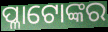
ପ୍ଳାଟୋଙ୍କର